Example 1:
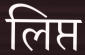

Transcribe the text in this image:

लिप्त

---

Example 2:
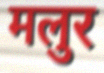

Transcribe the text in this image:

मलुर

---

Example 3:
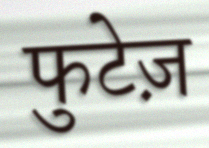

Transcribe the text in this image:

फुटेज़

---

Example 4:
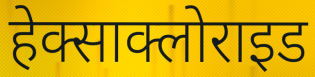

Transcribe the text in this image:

हेक्साक्लोराइड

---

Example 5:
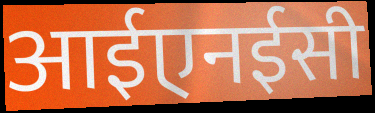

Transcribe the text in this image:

आईएनईसी